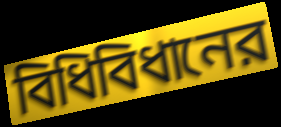
বিধিবিধানের